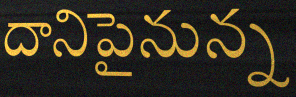
దానిపైనున్న